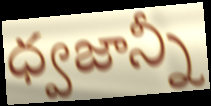
ధ్వజాన్నీ